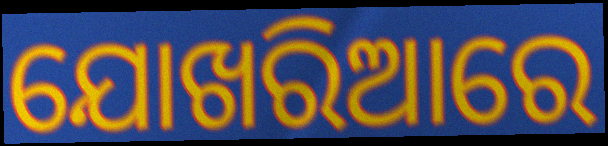
ଯୋଖରିଆରେ